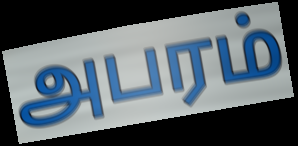
அபரம்